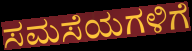
ಸಮಸೆಯಗಳಿಗೆ